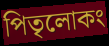
পিতৃলোকং